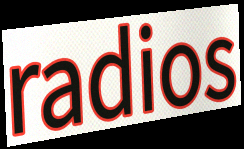
radios